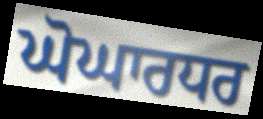
ਘੋਘਾਰਧਰ